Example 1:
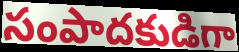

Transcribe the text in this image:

సంపాదకుడిగా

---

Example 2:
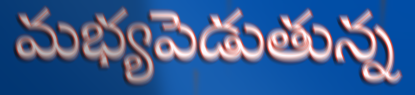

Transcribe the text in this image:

మభ్యపెడుతున్న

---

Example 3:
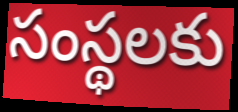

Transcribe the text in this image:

సంస్థలకు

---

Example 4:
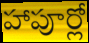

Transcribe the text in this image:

హాపూర్లో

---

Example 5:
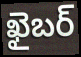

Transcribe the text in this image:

ఖైబర్